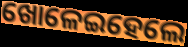
ଖୋଳେଇହେଲେ